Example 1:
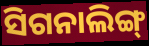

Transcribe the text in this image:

ସିଗନାଲିଙ୍ଗ୍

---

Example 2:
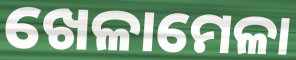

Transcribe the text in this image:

ଖେଳାମେଳା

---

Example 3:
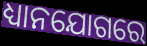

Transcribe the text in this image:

ଧ୍ୟାନଯୋଗରେ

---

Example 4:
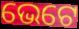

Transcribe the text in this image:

ଭେଟେ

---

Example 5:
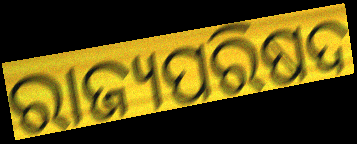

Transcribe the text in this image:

ରାଜ୍ୟପରିଷଦ